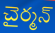
చైర్మన్